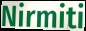
Nirmiti